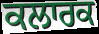
ਕਲਾਰਕ